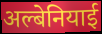
अल्बेनियाई